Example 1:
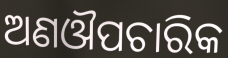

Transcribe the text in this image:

ଅଣଔପଚାରିକ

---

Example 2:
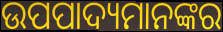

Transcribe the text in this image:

ଉପପାଦ୍ୟମାନଙ୍କର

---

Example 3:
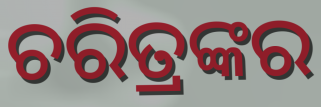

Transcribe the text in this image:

ଚରିତ୍ରଙ୍କର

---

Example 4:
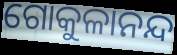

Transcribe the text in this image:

ଗୋକୁଳାନନ୍ଦ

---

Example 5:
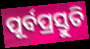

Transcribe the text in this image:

ପୂର୍ବପ୍ରସ୍ତୁତି